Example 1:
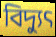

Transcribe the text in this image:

বিদ্যুৎ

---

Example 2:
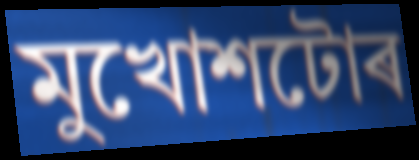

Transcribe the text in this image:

মুখোশটোৰ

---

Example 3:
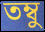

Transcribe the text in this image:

তম্বু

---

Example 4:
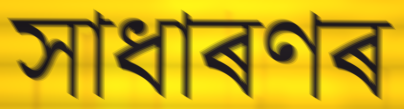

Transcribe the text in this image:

সাধাৰণৰ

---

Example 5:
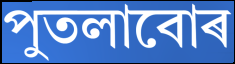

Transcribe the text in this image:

পুতলাবোৰ